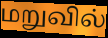
மறுவில்